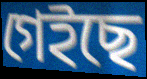
গেইছে